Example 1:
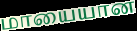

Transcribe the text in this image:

மாயையான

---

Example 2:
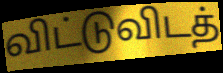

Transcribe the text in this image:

விட்டுவிடத்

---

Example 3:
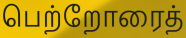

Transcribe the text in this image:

பெற்றோரைத்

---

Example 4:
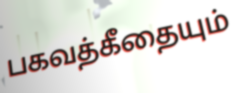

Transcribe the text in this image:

பகவத்கீதையும்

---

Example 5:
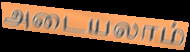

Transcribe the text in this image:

அடையலாம்